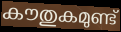
കൗതുകമുണ്ട്